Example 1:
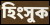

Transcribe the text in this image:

হিংসুক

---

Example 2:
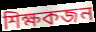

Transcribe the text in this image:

শিক্ষকজন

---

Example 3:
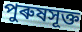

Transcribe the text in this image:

পুৰুষসূক্ত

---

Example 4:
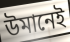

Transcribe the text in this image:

উমানেই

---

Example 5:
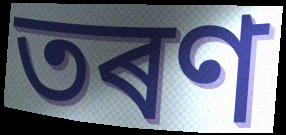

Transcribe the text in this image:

তৰণ